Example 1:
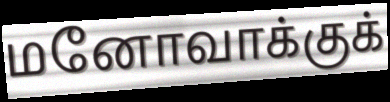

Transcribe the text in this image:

மனோவாக்குக்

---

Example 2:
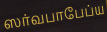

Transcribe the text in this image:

ஸர்வபாபேப்ய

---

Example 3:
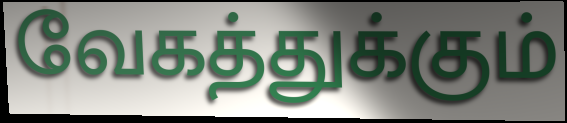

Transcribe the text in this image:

வேகத்துக்கும்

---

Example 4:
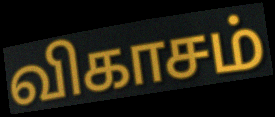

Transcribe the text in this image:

விகாசம்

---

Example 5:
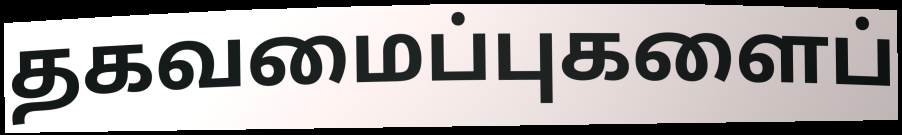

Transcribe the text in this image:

தகவமைப்புகளைப்